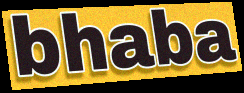
bhaba